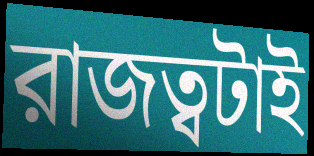
রাজত্বটাই